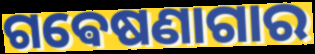
ଗଵେଷଣାଗାର